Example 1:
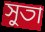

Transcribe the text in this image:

সুতা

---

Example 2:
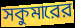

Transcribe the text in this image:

সকুমারের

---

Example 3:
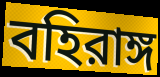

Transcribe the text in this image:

বহিরাঙ্গ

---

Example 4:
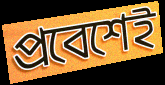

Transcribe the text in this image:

প্রবেশেই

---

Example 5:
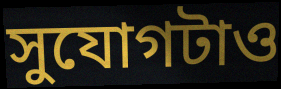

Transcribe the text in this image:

সুযোগটাও